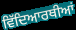
ਵਿੱਦਿਆਰਥੀਆਂ